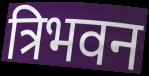
त्रिभवन